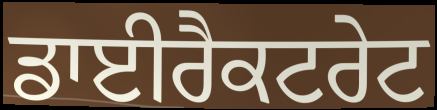
ਡਾਈਰੈਕਟਰੇਟ